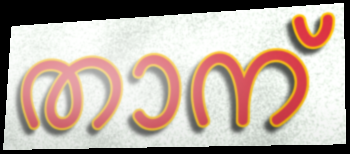
താന്